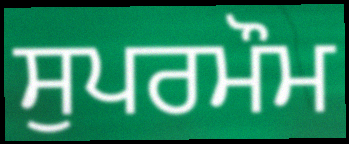
ਸੁਪਰਮੌਮ